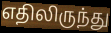
எதிலிருந்து